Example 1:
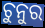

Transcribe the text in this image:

ଚୁନୁର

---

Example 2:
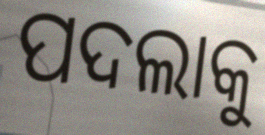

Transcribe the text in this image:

ପଦଲାକୁ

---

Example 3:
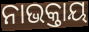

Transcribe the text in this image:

ନାଭକ୍ତାୟ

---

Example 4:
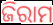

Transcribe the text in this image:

ଜିରାମ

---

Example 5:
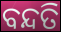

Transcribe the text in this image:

ବନ୍ଦତି